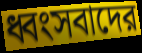
ধ্বংসবাদের